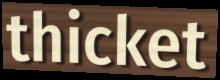
thicket